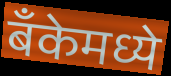
बँकेमध्ये